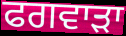
ਫਗਵਾੜਾ